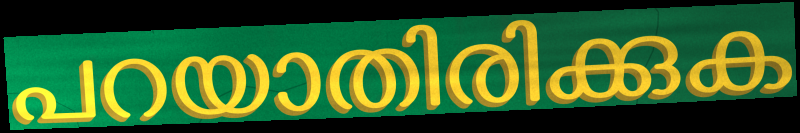
പറയാതിരിക്കുക